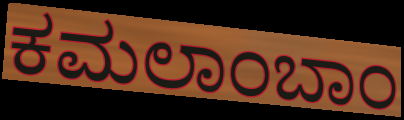
ಕಮಲಾಂಬಾಂ